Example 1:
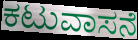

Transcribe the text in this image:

ಕಟುವಾಸನೆ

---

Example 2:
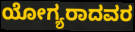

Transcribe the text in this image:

ಯೋಗ್ಯರಾದವರ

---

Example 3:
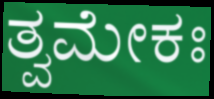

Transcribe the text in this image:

ತ್ವಮೇಕಃ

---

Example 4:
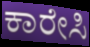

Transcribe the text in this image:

ಕಾರೇಸಿ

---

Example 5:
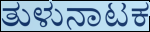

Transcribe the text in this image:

ತುಳುನಾಟಕ